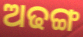
ଅଢଙ୍ଗ